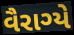
વૈરાગ્યે